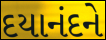
દયાનંદને